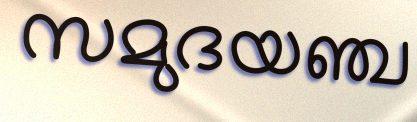
സമുദയഞ്ച